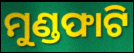
ମୁଣ୍ଡଫାଟି